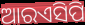
ଆରଏସିପି